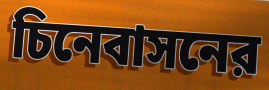
চিনেবাসনের